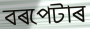
বৰপেটাৰ